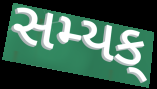
સમ્યક્